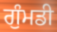
ਗੁੰਮਡੀ